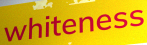
whiteness